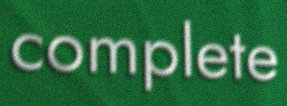
complete